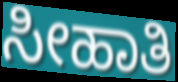
ಸೀಹಾತಿ